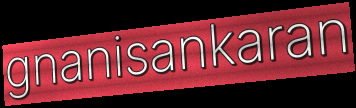
gnanisankaran